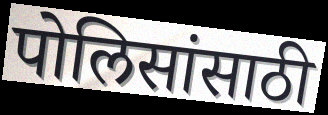
पोलिसांसाठी